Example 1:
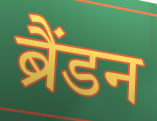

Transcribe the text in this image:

ब्रैंडन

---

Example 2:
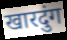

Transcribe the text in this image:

खारदुंग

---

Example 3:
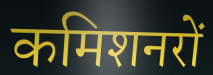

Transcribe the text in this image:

कमिशनरों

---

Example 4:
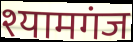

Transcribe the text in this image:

श्यामगंज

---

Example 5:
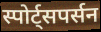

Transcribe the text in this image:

स्पोर्ट्सपर्सन